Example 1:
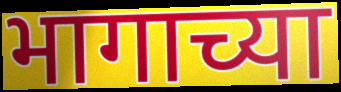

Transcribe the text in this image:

भागाच्या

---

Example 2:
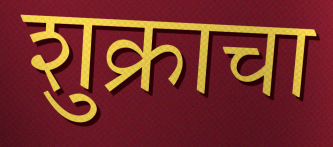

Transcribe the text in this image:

शुक्राचा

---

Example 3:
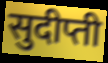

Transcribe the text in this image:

सुदीप्ती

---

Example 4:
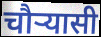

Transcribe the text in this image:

चौर्‍यासी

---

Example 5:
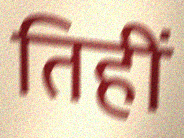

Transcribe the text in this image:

तिहीं